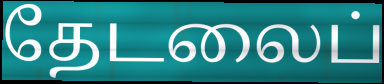
தேடலைப்